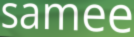
samee